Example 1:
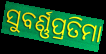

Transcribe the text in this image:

ସୁବର୍ଣ୍ଣପ୍ରତିମା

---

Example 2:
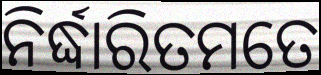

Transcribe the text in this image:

ନିର୍ଦ୍ଧାରିତମତେ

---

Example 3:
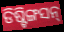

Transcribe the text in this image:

ଡିଷ୍ଟିଙ୍ଗସନ୍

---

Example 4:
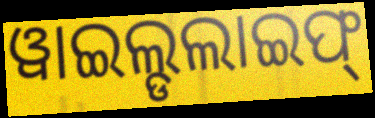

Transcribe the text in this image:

ୱାଇଲ୍ଡଲାଇଫ୍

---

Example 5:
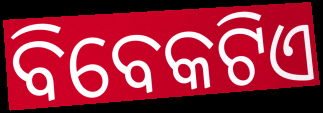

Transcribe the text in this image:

ବିବେକଟିଏ